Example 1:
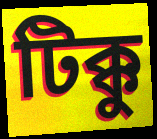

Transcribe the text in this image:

টিক্কু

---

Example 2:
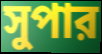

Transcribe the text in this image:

সুপার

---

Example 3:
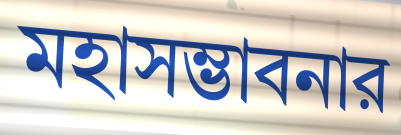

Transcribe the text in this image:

মহাসম্ভাবনার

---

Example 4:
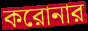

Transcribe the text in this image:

করোনার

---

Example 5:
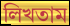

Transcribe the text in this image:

লিখতাম